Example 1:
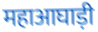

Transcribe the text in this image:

महाआघाड़ी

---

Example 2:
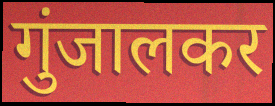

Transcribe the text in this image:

गुंजालकर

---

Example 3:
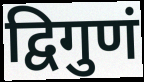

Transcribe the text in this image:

द्विगुणं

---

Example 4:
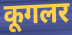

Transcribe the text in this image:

कूगलर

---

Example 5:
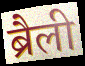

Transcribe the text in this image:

ब्रैली